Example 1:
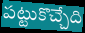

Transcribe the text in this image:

పట్టుకొచ్చేది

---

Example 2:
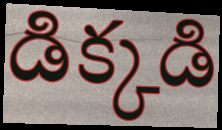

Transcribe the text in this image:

డిక్కడి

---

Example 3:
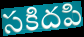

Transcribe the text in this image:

సకిదపి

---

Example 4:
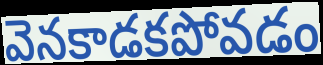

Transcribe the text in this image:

వెనకాడకపోవడం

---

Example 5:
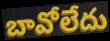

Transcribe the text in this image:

బావోలేదు